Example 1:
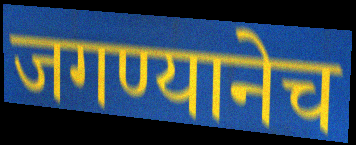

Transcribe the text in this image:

जगण्यानेच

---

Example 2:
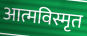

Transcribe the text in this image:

आत्मविस्मृत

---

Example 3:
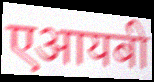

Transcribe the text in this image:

एआयबी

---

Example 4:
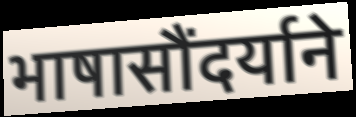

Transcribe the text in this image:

भाषासौंदर्याने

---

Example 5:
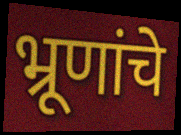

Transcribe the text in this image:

भ्रूणांचे